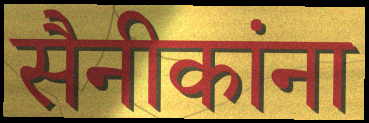
सैनीकांना